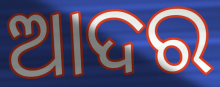
ଆଦର